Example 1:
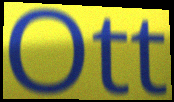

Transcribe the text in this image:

Ott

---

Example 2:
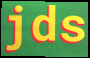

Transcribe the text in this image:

jds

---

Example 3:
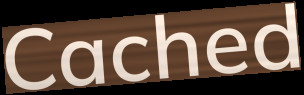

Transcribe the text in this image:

Cached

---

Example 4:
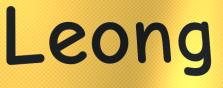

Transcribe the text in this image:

Leong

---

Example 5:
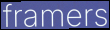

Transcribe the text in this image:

framers